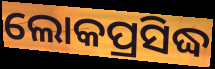
ଲୋକପ୍ରସିଦ୍ଧ